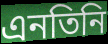
এনতিনি